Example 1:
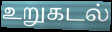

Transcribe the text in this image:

உறுகடல்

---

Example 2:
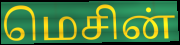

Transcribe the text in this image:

மெசின்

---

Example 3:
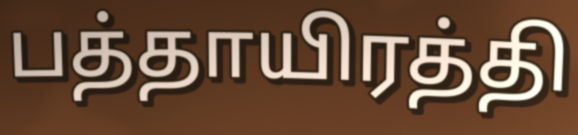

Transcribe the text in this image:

பத்தாயிரத்தி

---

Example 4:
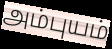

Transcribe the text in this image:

அம்புயம்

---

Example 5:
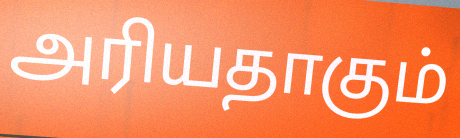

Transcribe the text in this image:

அரியதாகும்